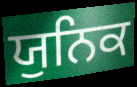
ਯੁਨਿਕ